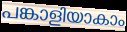
പങ്കാളിയാകാം